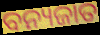
ବନ୍ୟଜାତ